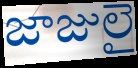
జాజులై